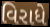
વિરાધે